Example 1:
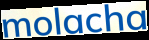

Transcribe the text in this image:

molacha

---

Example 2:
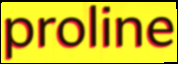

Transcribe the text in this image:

proline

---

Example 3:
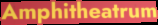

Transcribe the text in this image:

Amphitheatrum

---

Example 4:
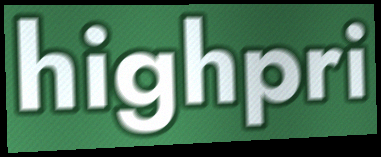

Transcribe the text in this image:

highpri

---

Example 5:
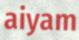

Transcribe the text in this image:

aiyam